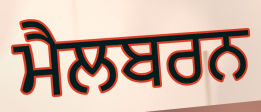
ਮੈਲਬਰਨ